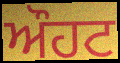
ਔਹਟ